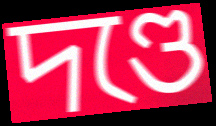
দণ্ডে